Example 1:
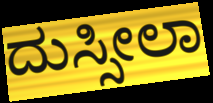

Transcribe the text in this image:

ದುಸ್ಸೀಲಾ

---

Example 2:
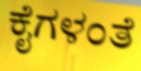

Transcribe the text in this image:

ಕೈಗಳಂತೆ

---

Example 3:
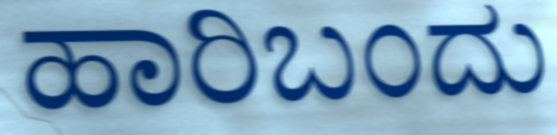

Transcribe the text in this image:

ಹಾರಿಬಂದು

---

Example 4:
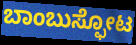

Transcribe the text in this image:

ಬಾಂಬುಸ್ಫೋಟ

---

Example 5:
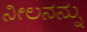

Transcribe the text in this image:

ನೀಲನನ್ನು